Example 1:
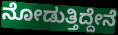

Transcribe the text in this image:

ನೋಡುತ್ತಿದ್ದೇನೆ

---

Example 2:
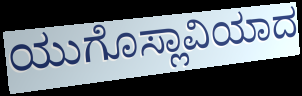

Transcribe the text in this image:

ಯುಗೊಸ್ಲಾವಿಯಾದ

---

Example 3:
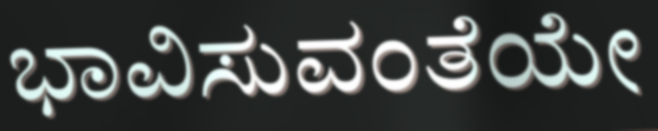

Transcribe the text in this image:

ಭಾವಿಸುವಂತೆಯೇ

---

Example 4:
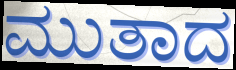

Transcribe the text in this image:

ಮುತಾದ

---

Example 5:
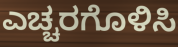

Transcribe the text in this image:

ಎಚ್ಚರಗೊಳಿಸಿ